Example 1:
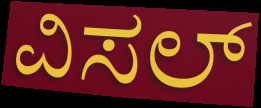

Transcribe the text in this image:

ವಿಸಲ್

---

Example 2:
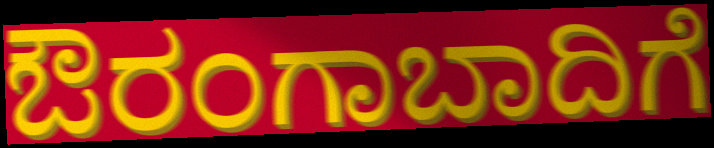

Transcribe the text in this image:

ಔರಂಗಾಬಾದಿಗೆ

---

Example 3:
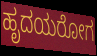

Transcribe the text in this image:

ಹೃದಯರೋಗ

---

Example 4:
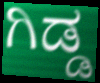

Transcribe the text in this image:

ಗಿಡ್ಡ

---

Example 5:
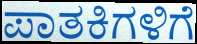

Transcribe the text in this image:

ಪಾತಕಿಗಳಿಗೆ